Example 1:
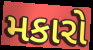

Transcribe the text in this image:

મકારો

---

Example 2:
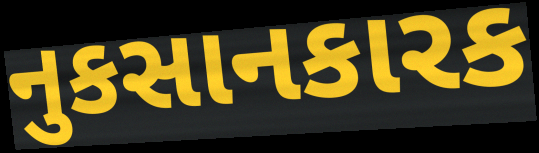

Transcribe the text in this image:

નુકસાનકારક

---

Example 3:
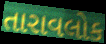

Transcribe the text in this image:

તારાવલોક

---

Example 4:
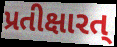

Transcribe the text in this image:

પ્રતીક્ષારત્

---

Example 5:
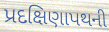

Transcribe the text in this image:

પ્રદક્ષિણાપથની